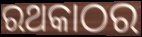
ରଥକାଠର